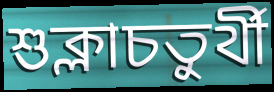
শুক্লাচতুৰ্থী